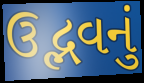
ઉદ્ભવનું